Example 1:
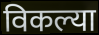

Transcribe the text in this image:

विकल्या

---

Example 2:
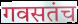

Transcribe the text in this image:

गवसतंच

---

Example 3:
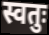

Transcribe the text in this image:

स्वतुः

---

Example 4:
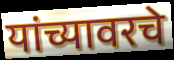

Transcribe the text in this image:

यांच्यावरचे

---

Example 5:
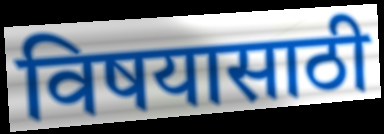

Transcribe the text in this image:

विषयासाठी